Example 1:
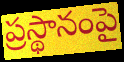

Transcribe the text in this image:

ప్రస్థానంపై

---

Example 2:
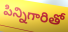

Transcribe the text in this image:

పిన్నిగారితో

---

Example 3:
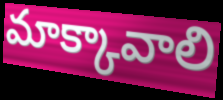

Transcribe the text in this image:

మాక్కావాలి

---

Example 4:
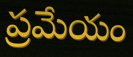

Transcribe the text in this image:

ప్రమేయం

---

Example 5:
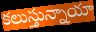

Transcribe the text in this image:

కలుస్తున్నాయా